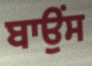
ਬਾਉਂਸ